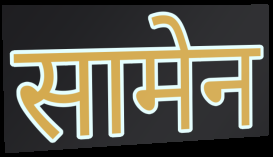
सामेन